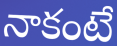
నాకంటే